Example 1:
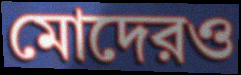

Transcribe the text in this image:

মোদেরও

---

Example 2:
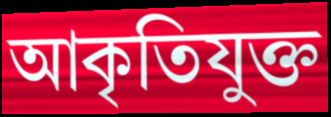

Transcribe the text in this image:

আকৃতিযুক্ত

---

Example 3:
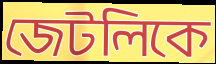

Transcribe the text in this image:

জেটলিকে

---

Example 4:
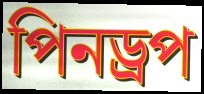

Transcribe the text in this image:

পিনড্রপ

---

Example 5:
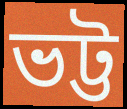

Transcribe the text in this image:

ভট্ট